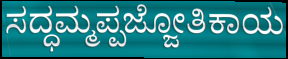
ಸದ್ಧಮ್ಮಪ್ಪಜ್ಜೋತಿಕಾಯ